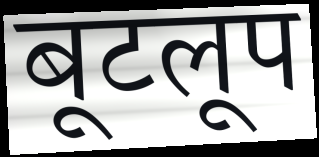
बूटलूप